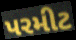
પરમીટ